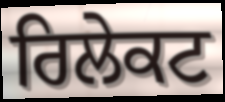
ਰਿਲੇਕਟ